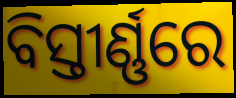
ବିସ୍ତୀର୍ଣ୍ଣରେ